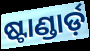
ଷ୍ଟାଣ୍ଡାର୍ଡ଼